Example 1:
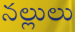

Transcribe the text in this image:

నల్లులు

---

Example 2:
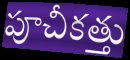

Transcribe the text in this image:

పూచీకత్తు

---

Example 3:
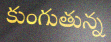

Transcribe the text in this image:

కుంగుతున్న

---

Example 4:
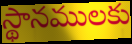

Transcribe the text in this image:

స్థానములకు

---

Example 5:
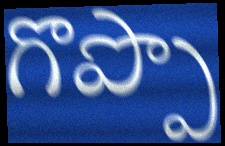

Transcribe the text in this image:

గొప్పొ